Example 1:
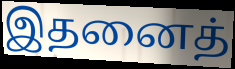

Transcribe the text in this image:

இதனைத்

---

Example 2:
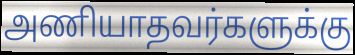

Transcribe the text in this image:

அணியாதவர்களுக்கு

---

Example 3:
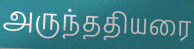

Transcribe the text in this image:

அருந்ததியரை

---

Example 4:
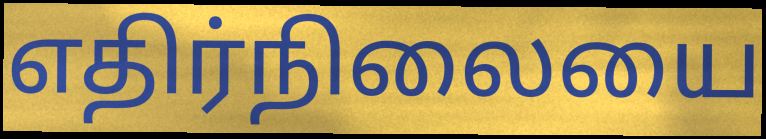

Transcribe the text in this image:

எதிர்நிலையை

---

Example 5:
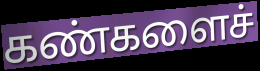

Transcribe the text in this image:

கண்களைச்